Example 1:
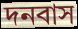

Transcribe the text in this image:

দনবাস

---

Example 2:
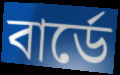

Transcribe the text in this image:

বার্ডে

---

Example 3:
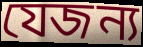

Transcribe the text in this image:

যেজন্য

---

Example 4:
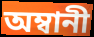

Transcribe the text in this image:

অম্বানী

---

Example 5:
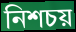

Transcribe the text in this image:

নিশচয়